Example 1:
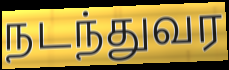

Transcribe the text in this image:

நடந்துவர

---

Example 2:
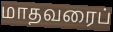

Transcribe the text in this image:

மாதவரைப்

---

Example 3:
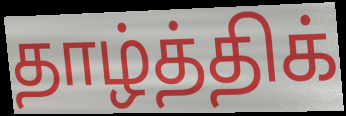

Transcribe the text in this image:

தாழ்த்திக்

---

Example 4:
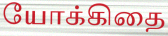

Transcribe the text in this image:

யோக்கிதை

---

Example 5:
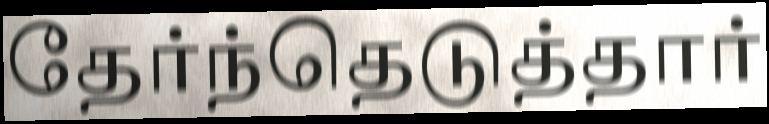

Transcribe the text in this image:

தேர்ந்தெடுத்தார்